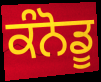
ਕੰਨੋਡੂ